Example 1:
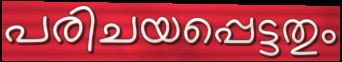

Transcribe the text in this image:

പരിചയപ്പെട്ടതും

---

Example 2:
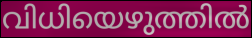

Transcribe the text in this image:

വിധിയെഴുത്തിൽ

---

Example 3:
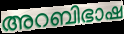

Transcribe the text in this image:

അറബിഭാഷ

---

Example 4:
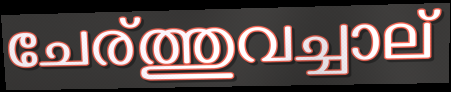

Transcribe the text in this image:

ചേര്ത്തുവച്ചാല്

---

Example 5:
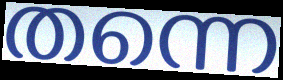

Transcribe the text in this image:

തന്നെ